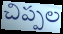
చిప్పల